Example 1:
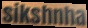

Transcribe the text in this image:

sikshnha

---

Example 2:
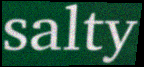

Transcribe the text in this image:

salty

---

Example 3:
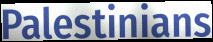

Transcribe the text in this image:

Palestinians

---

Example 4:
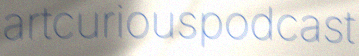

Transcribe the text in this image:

artcuriouspodcast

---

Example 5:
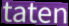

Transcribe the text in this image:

taten